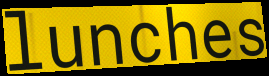
lunches